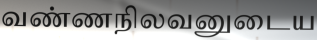
வண்ணநிலவனுடைய